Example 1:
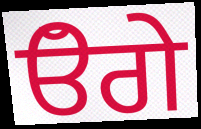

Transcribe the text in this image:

ੳੱਗੇ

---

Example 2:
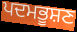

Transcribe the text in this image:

ਪਦਮਭੂਸ਼ਣ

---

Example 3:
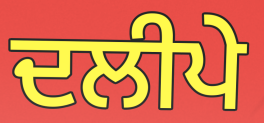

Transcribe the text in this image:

ਦਲੀਪੇ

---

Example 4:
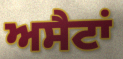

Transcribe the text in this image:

ਅਸੈਟਾਂ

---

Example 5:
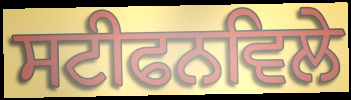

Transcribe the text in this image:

ਸਟੀਫਨਵਿਲੇ